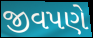
જીવપણે